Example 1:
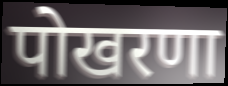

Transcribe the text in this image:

पोखरणा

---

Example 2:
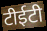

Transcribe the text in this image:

टीईटी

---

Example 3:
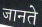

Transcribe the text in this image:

जानते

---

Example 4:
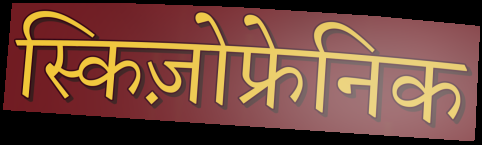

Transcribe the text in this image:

स्किज़ोफ्रेनिक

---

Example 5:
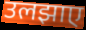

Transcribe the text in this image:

उलझाए